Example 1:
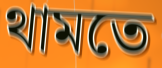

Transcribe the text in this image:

থামতে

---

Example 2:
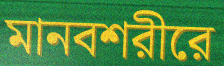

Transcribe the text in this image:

মানবশরীরে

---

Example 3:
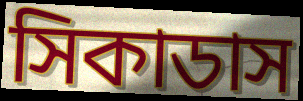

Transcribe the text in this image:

সিকাডাস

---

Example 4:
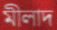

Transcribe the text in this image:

মীলাদ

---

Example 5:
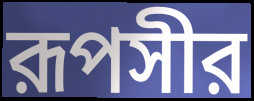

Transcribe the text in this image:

রূপসীর